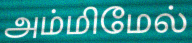
அம்மிமேல்